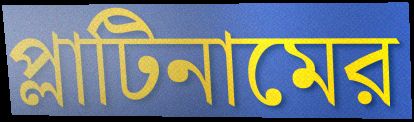
প্লাটিনামের